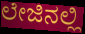
ಲೇಜಿನಲ್ಲಿ